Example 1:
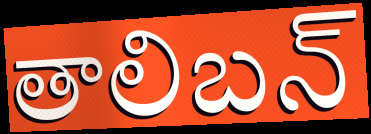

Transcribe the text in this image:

తాలిబన్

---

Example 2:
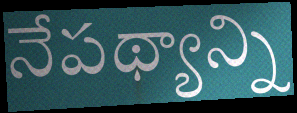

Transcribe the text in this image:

నేపథ్యాన్ని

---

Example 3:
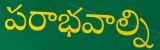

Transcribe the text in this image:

పరాభవాల్ని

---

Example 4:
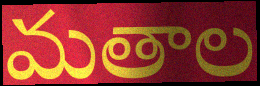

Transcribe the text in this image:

మతాల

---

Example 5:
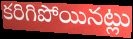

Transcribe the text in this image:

కరిగిపోయినట్లు